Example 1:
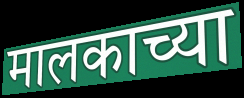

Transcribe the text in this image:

मालकाच्या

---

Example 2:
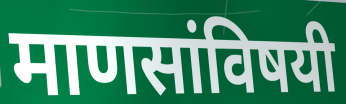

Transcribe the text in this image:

माणसांविषयी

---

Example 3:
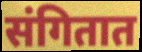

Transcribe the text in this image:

संगितात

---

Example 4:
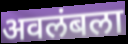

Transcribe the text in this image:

अवलंबला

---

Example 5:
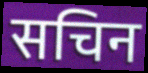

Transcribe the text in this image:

सचिन